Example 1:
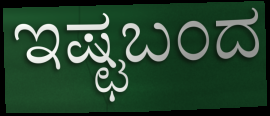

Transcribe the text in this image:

ಇಷ್ಟಬಂದ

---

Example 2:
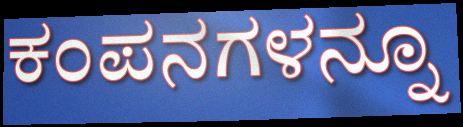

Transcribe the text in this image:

ಕಂಪನಗಳನ್ನೂ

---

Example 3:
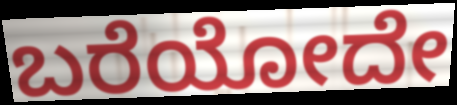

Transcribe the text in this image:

ಬರೆಯೋದೇ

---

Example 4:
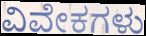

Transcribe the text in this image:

ವಿವೇಕಗಳು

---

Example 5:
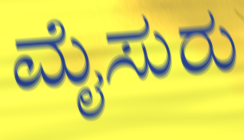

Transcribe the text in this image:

ಮೈಸುರು